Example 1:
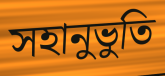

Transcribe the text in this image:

সহানুভুতি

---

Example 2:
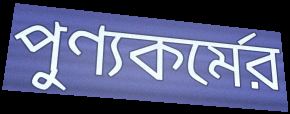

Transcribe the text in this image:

পুণ্যকর্মের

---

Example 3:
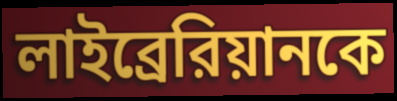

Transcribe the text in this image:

লাইব্রেরিয়ানকে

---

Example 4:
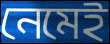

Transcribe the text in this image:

নেমেই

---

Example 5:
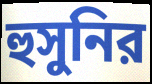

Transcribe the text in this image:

হুসুনির